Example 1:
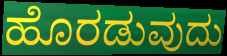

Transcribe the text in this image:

ಹೊರಡುವುದು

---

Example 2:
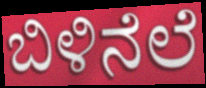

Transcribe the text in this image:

ಬಿಳಿನೆಲೆ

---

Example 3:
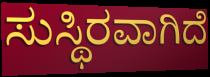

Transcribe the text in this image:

ಸುಸ್ಥಿರವಾಗಿದೆ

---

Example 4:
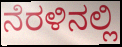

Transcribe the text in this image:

ನೆರಳಿನಲ್ಲಿ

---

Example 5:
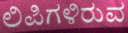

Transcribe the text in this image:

ಲಿಪಿಗಳಿರುವ